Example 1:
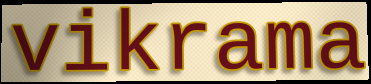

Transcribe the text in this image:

vikrama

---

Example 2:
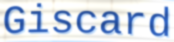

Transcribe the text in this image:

Giscard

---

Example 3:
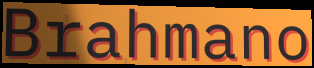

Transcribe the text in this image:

Brahmano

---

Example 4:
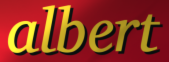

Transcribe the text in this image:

albert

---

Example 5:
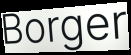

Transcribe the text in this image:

Borger